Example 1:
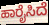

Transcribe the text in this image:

ಹಾರೈಸಿದೆ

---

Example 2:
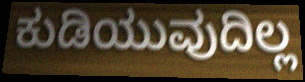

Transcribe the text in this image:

ಕುಡಿಯುವುದಿಲ್ಲ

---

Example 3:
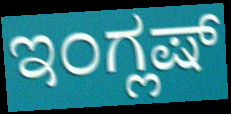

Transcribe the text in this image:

ಇಂಗ್ಲಷ್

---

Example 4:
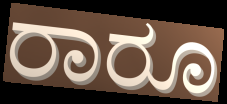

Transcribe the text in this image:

ರಾರೂ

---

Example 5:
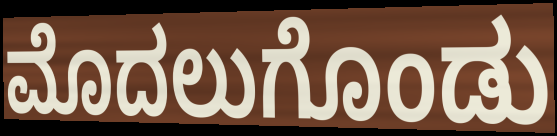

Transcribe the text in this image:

ಮೊದಲುಗೊಂಡು